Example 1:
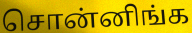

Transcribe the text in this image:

சொன்னிங்க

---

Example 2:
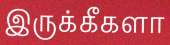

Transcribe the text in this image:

இருக்கீகளா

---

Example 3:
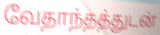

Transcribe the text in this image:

வேதாந்தத்துடன்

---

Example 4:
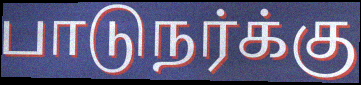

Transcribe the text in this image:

பாடுநர்க்கு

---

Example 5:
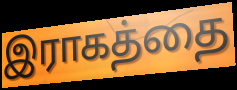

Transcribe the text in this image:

இராகத்தை